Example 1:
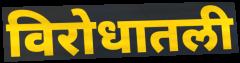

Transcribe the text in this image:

विरोधातली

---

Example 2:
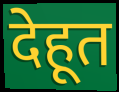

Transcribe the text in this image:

देहूत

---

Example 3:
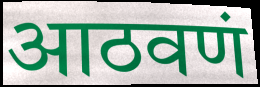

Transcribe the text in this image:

आठवणं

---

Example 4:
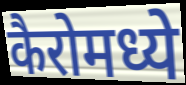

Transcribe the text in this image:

कैरोमध्ये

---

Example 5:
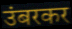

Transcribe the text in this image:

उंबरकर